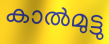
കാൽമുട്ടു